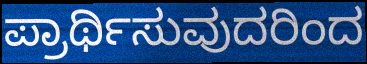
ಪ್ರಾರ್ಥಿಸುವುದರಿಂದ